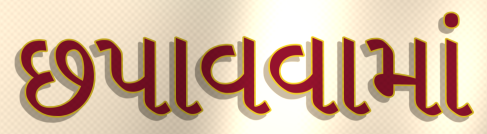
છપાવવામાં